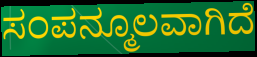
ಸಂಪನ್ಮೂಲವಾಗಿದೆ